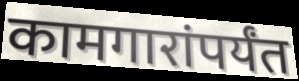
कामगारांपर्यंत